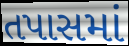
તપાસમાં